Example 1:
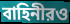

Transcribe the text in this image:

বাহিনীরও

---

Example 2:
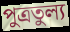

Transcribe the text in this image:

পুত্রতুল্য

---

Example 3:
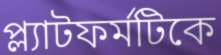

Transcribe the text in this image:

প্ল্যাটফর্মটিকে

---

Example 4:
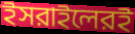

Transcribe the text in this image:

ইসরাইলেরই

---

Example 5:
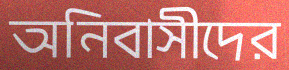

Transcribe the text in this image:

অনিবাসীদের